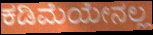
ಕಡಿಮೆಯೇನಲ್ಲ